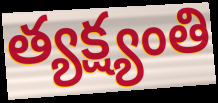
త్యక్ష్యంతి